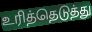
உரித்தெடுத்து